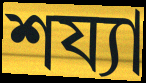
শয্যা